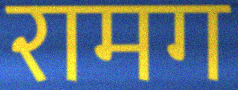
रामग